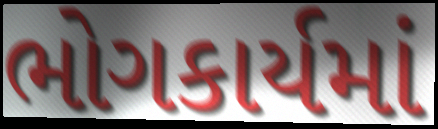
ભોગકાર્યમાં